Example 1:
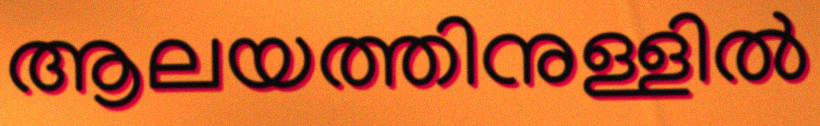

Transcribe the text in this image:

ആലയത്തിനുള്ളിൽ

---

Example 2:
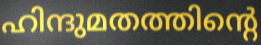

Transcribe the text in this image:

ഹിന്ദുമതത്തിന്റെ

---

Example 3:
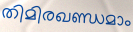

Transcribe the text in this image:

തിമിരഖണ്ഡമാം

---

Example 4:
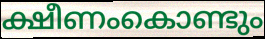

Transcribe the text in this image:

ക്ഷീണംകൊണ്ടും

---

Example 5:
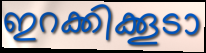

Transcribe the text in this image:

ഇറക്കിക്കൂടാ